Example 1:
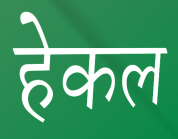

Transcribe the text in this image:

हेकल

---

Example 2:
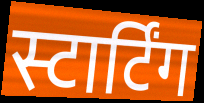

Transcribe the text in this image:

स्टार्टिंग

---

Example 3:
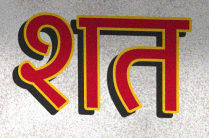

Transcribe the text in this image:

शत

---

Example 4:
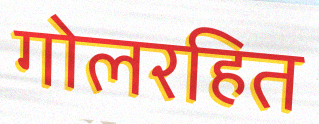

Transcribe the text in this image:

गोलरहित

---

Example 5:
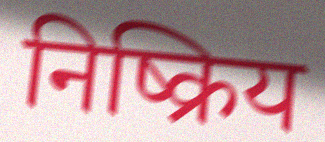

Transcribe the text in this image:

निष्क्रिय